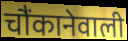
चौंकानेवाली